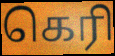
கெரி